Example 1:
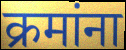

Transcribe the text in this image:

क्रमांना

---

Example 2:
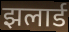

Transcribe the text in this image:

झलार्ड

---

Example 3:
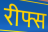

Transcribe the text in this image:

रीफ्स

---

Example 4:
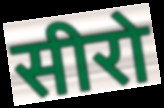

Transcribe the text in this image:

सीरो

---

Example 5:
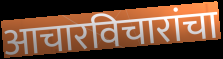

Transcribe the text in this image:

आचारविचारांचा